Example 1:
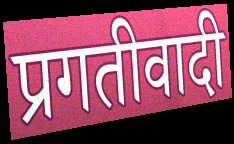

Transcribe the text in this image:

प्रगतीवादी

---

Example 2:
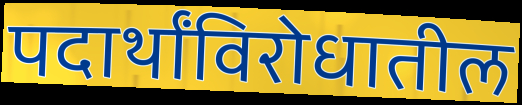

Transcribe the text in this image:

पदार्थांविरोधातील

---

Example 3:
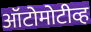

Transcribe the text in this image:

ऑटोमोटीव्ह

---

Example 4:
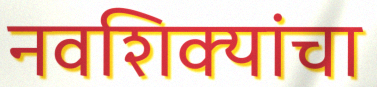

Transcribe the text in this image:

नवशिक्यांचा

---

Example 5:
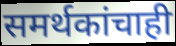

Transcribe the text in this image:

समर्थकांचाही